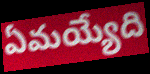
ఏమయ్యేది